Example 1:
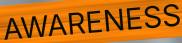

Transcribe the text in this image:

AWARENESS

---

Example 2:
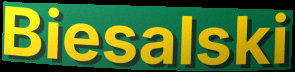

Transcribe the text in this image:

Biesalski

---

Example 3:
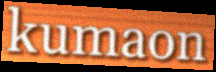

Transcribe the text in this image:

kumaon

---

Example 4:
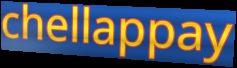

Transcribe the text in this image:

chellappay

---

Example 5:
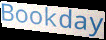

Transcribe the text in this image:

Bookday